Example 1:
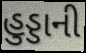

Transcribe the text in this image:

હુડ્ડાની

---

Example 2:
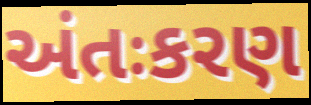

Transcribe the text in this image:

અંતઃકરણ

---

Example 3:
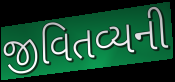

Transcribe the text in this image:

જીવિતવ્યની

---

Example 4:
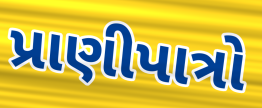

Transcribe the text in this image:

પ્રાણીપાત્રો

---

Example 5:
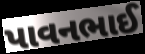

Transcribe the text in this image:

પાવનભાઈ